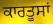
ਕਾਰਤੂਸਾਂ